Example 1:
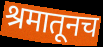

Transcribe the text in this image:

श्रमातूनच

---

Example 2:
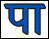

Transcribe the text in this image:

पा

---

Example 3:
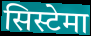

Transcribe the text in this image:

सिस्टेमा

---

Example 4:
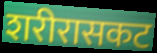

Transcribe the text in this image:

शरीरासकट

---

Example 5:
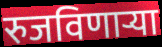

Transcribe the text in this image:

रुजविणाऱ्या